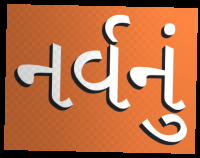
નર્વનું